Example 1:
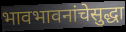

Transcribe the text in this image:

भावभावनांचेसुद्धा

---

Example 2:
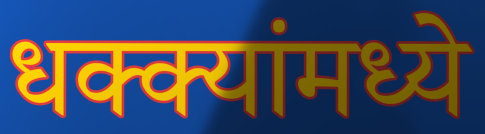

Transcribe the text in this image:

धक्क्यांमध्ये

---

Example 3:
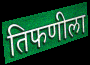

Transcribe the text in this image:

तिफणीला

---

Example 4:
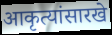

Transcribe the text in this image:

आकृत्यांसारखे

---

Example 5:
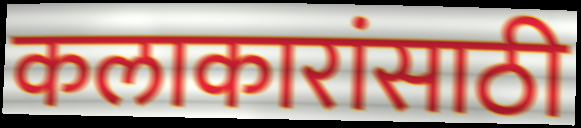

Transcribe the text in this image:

कलाकारांसाठी